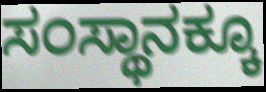
ಸಂಸ್ಥಾನಕ್ಕೂ